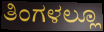
ತಿಂಗಳಲ್ಲೂ